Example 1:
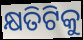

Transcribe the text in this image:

କ୍ଷତିଟିକୁ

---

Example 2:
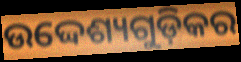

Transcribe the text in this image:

ଉଦ୍ଦେଶ୍ୟଗୁଡ଼ିକର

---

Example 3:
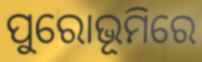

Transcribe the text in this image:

ପୁରୋଭୂମିରେ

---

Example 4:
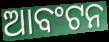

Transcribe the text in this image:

ଆବଂଟନ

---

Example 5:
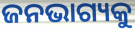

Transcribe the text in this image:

ଜନଭାଗ୍ୟକୁ